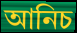
আনিচ